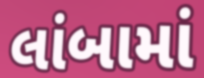
લાંબામાં